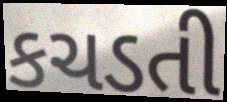
કચડતી